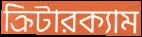
ক্রিটারক্যাম